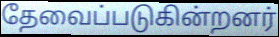
தேவைப்படுகின்றனர்